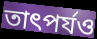
তাৎপৰ্যও